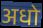
अधो